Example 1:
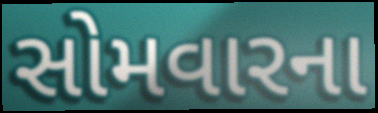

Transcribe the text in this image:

સોમવારના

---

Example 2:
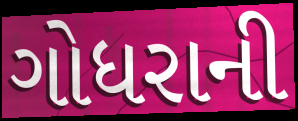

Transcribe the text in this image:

ગોધરાની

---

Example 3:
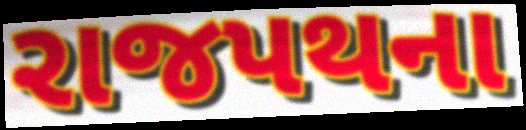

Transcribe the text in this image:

રાજપથના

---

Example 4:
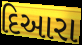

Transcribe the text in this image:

દિઆરા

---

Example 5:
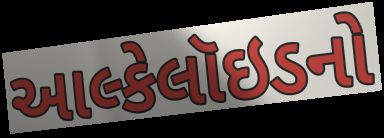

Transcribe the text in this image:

આલ્કેલૉઇડનો